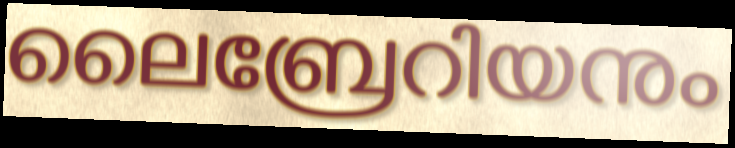
ലൈബ്രേറിയനും